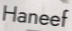
Haneef